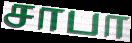
சாபா